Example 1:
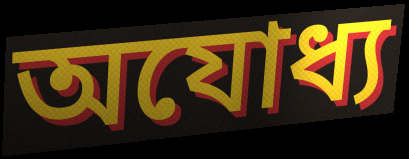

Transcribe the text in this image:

অযোধ্য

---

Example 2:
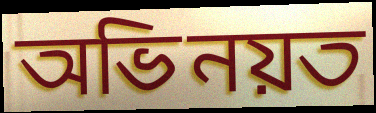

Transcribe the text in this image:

অভিনয়ত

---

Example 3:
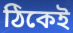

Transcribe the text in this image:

ঠিকেই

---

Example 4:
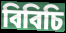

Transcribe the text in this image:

বিবিচি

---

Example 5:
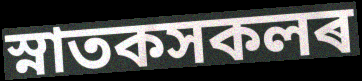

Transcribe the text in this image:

স্নাতকসকলৰ